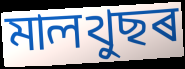
মালথুছৰ